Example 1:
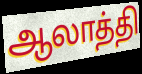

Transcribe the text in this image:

ஆலாத்தி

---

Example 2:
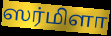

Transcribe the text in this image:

ஸர்மிளா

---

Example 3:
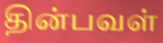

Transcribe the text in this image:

தின்பவள்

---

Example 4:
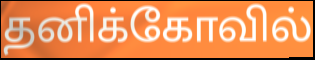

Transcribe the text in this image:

தனிக்கோவில்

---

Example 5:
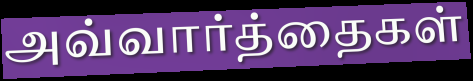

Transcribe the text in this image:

அவ்வார்த்தைகள்